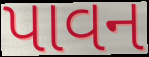
પાવન